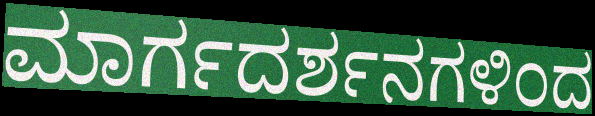
ಮಾರ್ಗದರ್ಶನಗಳಿಂದ